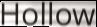
Hollow